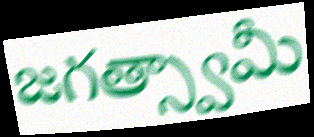
జగత్స్వామీ